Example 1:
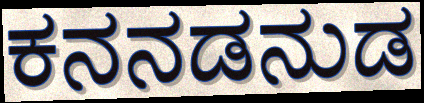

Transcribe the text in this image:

ಕನನಡನುಡ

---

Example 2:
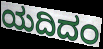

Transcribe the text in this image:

ಯದಿದಂ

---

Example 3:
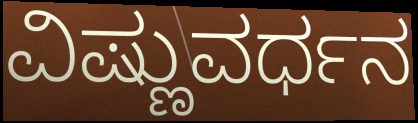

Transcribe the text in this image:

ವಿಷ್ಣುವರ್ಧನ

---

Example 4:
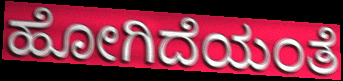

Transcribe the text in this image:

ಹೋಗಿದೆಯಂತೆ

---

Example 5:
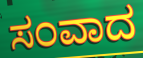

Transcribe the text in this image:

ಸಂವಾದ